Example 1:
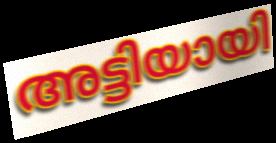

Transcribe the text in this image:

അട്ടിയായി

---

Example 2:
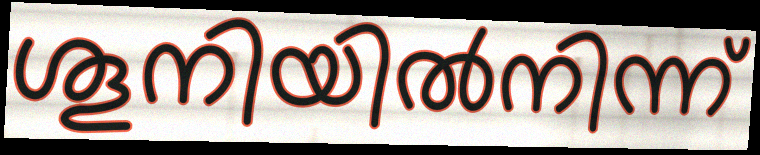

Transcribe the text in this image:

ശൂനിയിൽനിന്ന്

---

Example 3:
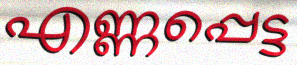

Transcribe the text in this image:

എണ്ണപ്പെട്ട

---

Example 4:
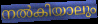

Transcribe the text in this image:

നൽകിയാലും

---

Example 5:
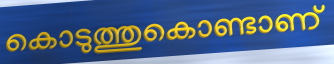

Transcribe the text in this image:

കൊടുത്തുകൊണ്ടാണ്